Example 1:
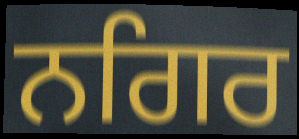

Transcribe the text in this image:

ਨਗਿਰ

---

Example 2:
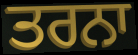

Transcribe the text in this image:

ਤਰਨਾ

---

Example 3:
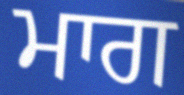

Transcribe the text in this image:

ਮਾਗ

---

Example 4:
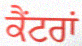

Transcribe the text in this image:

ਕੈਂਟਰਾਂ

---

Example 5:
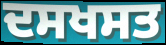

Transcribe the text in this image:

ਦਸਖਸਤ